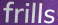
frills